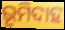
ଭୂମିଦାହ